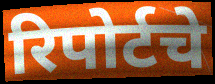
रिपोर्टचे